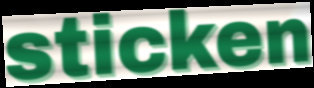
sticken